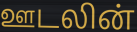
ஊடலின்